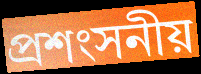
প্ৰশংসনীয়